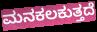
ಮನಕಲಕುತ್ತದೆ